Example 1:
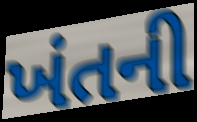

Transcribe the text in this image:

ખંતની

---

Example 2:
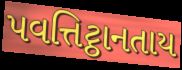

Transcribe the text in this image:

પવત્તિટ્ઠાનતાય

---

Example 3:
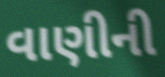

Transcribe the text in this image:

વાણીની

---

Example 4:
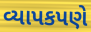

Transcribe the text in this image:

વ્યાપકપણે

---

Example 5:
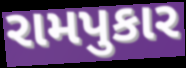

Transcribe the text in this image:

રામપુકાર